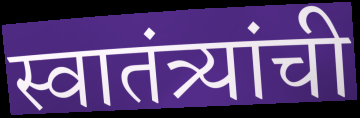
स्वातंत्र्यांची